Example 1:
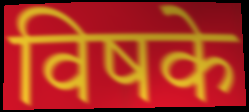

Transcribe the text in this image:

विषके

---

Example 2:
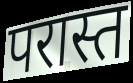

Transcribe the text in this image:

परास्त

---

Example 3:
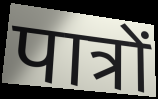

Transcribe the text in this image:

पात्रों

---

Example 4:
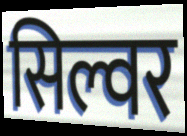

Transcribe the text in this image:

सिल्‍वर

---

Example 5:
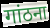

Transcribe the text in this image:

गांठना